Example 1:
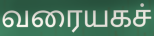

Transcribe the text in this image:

வரையகச்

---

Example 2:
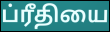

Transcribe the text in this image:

ப்ரீதியை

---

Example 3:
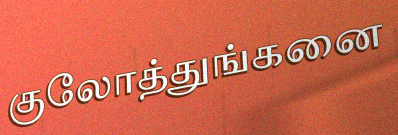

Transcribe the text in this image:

குலோத்துங்கனை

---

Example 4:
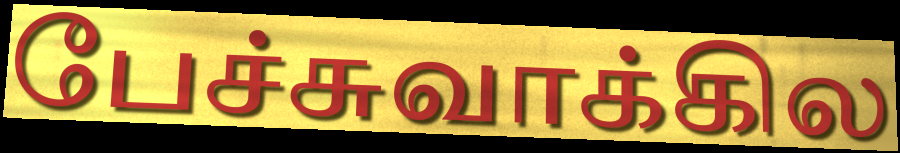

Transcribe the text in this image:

பேச்சுவாக்கில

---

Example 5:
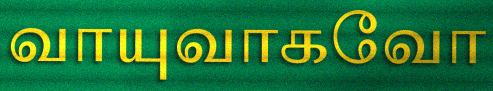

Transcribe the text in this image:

வாயுவாகவோ